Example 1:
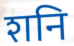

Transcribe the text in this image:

शनि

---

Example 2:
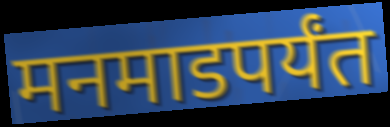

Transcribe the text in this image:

मनमाडपर्यंत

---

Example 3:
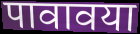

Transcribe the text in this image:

पावावया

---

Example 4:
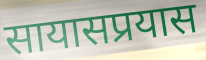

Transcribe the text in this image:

सायासप्रयास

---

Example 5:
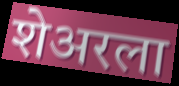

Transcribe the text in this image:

शेअरला